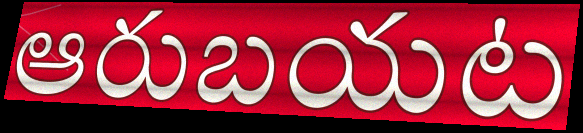
ఆరుబయట